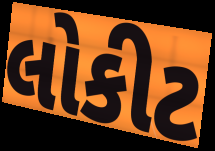
લોકીટ